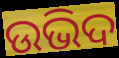
ଉଭିଦ